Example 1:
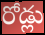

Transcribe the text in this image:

రోడ్లు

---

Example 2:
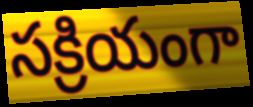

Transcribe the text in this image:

సక్రియంగా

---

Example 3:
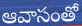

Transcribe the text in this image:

ఆవాసంతో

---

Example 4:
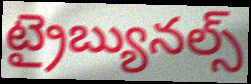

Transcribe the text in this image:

ట్రైబ్యునల్స్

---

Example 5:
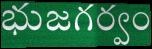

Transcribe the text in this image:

భుజగర్వం